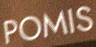
POMIS